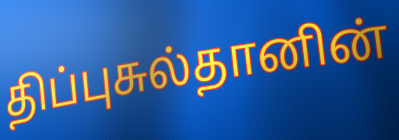
திப்புசுல்தானின்